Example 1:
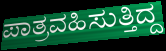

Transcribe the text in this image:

ಪಾತ್ರವಹಿಸುತ್ತಿದ್ದ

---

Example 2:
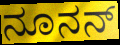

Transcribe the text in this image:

ನೂನನ್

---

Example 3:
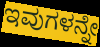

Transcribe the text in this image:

ಇವುಗಳನ್ನೇ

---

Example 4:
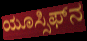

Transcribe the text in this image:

ಯೂಸ್ಸಿಫ್‌ನ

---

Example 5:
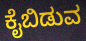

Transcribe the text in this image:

ಕೈಬಿಡುವ